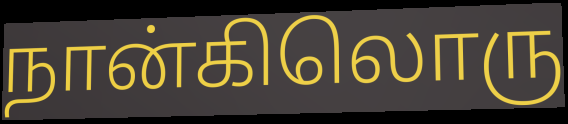
நான்கிலொரு